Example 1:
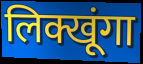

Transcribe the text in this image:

लिक्खूंगा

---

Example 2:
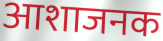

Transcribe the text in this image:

आशाजनक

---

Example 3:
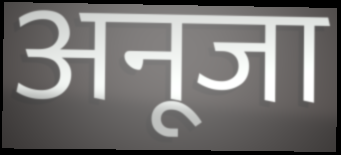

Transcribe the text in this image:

अनूजा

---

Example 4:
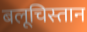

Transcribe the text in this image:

बलूचिस्‍तान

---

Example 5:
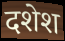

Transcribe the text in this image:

दशेश